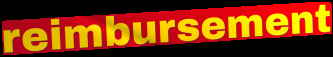
reimbursement